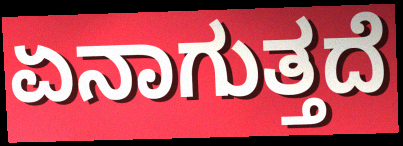
ಏನಾಗುತ್ತದೆ